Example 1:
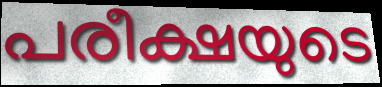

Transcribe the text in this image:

പരീക്ഷയുടെ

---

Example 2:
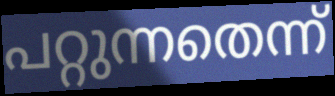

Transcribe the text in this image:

പറ്റുന്നതെന്ന്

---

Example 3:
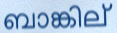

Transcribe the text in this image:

ബാങ്കില്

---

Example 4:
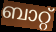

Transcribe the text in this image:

ബാറ്റ്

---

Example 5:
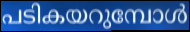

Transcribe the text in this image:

പടികയറുമ്പോൾ